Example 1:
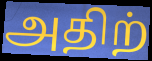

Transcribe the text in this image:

அதிற்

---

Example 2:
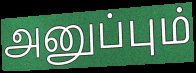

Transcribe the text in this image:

அனுப்பும்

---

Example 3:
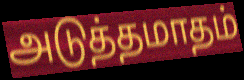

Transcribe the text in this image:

அடுத்தமாதம்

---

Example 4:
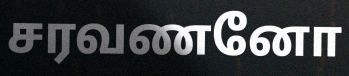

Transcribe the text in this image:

சரவணனோ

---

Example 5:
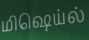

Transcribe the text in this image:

மிஷெய்ல்